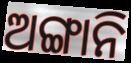
ଅଙ୍ଗାନି